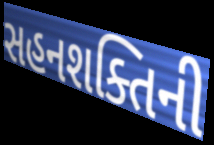
સહનશક્તિની